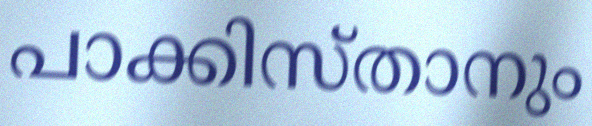
പാക്കിസ്താനും